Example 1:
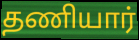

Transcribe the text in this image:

தணியார்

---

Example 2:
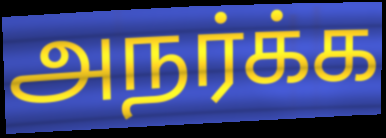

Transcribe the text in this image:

அநர்க்க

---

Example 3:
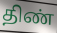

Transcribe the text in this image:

திண்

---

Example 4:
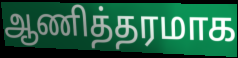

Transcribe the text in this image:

ஆணித்தரமாக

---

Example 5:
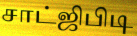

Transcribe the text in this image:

சாட்ஜிபிடி